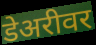
डेअरीवर